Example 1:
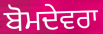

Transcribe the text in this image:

ਬੋਮਦੇਵਰਾ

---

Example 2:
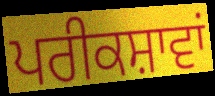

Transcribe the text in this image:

ਪਰੀਕਸ਼ਾਵਾਂ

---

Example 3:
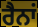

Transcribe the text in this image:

ਰੈਨਾਂ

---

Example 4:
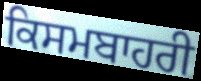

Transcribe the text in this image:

ਕਿਸਮਬਾਹਰੀ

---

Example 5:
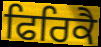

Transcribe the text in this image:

ਫਿਰਿਕੈ